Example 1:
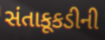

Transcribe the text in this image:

સંતાકૂકડીની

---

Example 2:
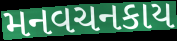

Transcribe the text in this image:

મનવચનકાય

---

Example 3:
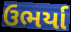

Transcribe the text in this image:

ઉભર્યા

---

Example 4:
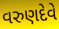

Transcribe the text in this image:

વરુણદેવે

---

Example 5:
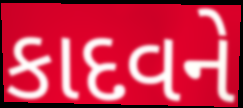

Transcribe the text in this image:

કાદવને